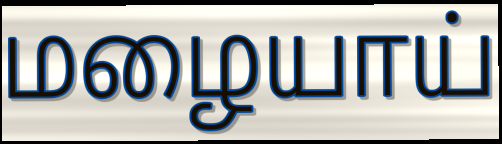
மழையாய்